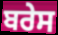
ਬਰੇਸ